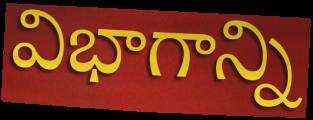
విభాగాన్ని